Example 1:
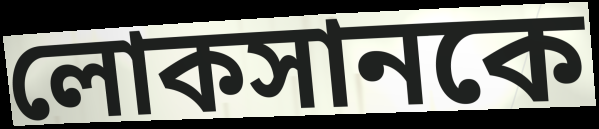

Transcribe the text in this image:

লোকসানকে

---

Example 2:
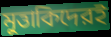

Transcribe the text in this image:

মুত্তাকিদেরই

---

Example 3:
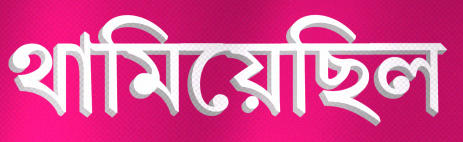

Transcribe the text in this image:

থামিয়েছিল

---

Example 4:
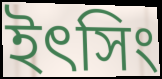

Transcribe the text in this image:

ইৎসিং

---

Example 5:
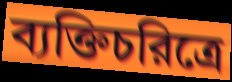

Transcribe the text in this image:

ব্যক্তিচরিত্রে